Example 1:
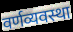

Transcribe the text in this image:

वर्णव्यवस्था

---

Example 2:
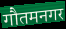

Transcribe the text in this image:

गौतमनगर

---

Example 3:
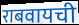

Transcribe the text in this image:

राबवायची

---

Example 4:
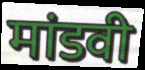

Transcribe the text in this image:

मांडवी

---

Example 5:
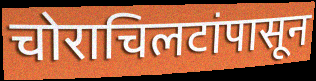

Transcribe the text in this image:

चोराचिलटांपासून